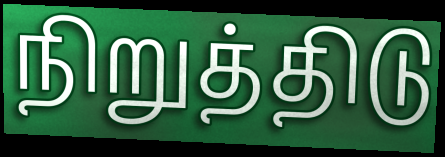
நிறுத்திடு